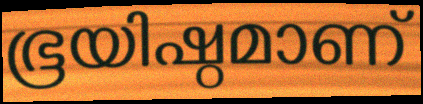
ഭൂയിഷ്ഠമാണ്